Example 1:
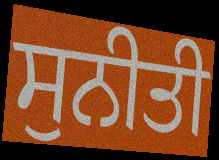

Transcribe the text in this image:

ਸੁਨੀਤੀ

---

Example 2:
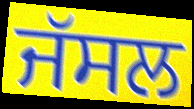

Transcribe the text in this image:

ਜੱਸਲ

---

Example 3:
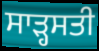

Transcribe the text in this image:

ਸਾੜ੍ਹਸਤੀ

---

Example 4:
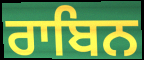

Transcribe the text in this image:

ਰਾਬਿਨ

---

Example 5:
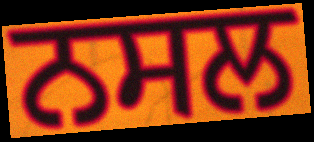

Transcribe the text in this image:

ਨਸਲ